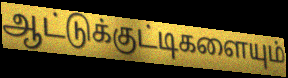
ஆட்டுக்குட்டிகளையும்